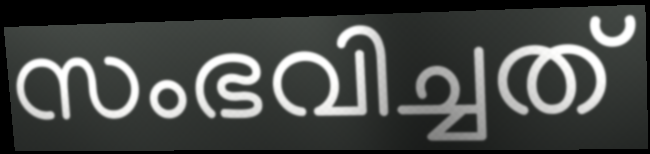
സംഭവിച്ചത്